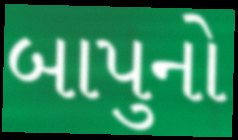
બાપુનો